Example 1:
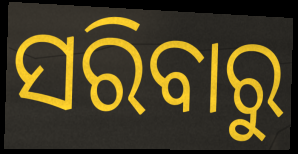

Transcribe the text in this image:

ସରିବାରୁ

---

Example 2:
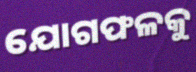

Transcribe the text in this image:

ଯୋଗଫଳକୁ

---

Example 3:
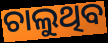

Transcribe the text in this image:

ଚାଲୁଥିବ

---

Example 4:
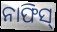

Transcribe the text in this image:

ନାଫିସ୍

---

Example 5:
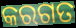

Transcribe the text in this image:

କରଗତ